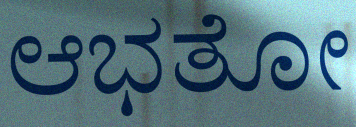
ಆಭತೋ